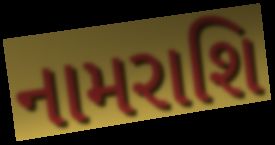
નામરાશિ